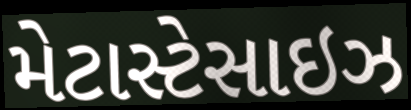
મેટાસ્ટેસાઇઝ